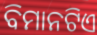
ବିମାନଟିଏ